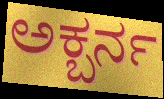
ಅಕ್ಬರ್ನ